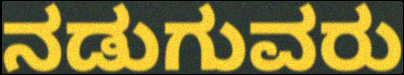
ನಡುಗುವರು